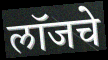
लॉजचे